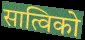
सात्विको